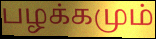
பழக்கமும்